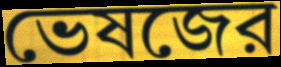
ভেষজের